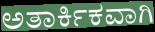
ಅತಾರ್ಕಿಕವಾಗಿ